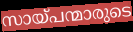
സായ്പന്മാരുടെ